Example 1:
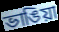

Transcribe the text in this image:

ভাঙিয়া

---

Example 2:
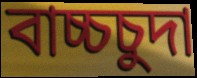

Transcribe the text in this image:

বাচ্চচুদা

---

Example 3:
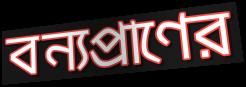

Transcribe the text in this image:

বন্যপ্রাণের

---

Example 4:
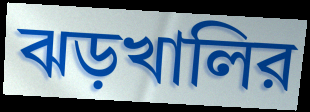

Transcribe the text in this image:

ঝড়খালির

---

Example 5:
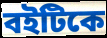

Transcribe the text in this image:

বইটিকে